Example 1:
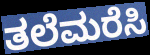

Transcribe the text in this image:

ತಲೆಮರೆಸಿ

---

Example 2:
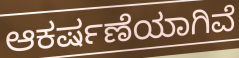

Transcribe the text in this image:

ಆಕರ್ಷಣೆಯಾಗಿವೆ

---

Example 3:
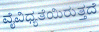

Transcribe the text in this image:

ವೈವಿಧ್ಯತೆಯಿರುತ್ತದೆ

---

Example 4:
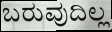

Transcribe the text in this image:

ಬರುವುದಿಲ್ಲ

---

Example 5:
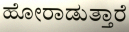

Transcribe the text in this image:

ಹೋರಾಡುತ್ತಾರೆ